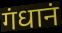
गंधानं